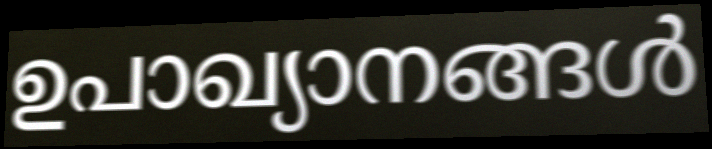
ഉപാഖ്യാനങ്ങൾ